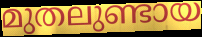
മുതലുണ്ടായ